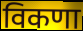
विकणा